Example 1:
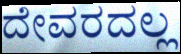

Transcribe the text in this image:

ದೇವರದಲ್ಲ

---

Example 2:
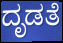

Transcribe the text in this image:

ದೃಡತೆ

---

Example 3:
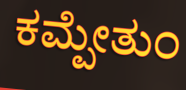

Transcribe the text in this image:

ಕಮ್ಪೇತುಂ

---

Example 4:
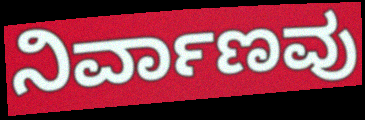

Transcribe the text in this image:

ನಿರ್ವಾಣವು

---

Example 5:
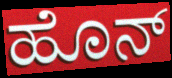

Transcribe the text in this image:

ಹೊನ್